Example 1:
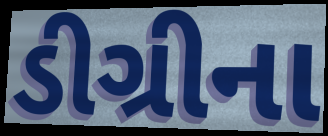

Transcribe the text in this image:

ડીગ્રીના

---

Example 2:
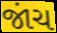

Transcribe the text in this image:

જાંચ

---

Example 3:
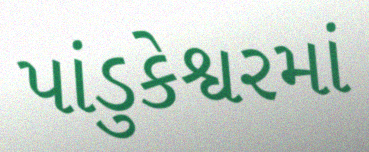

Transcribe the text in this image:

પાંડુકેશ્વરમાં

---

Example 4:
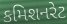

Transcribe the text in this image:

કમિશનરેટ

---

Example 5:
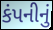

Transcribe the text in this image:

કંપનીનું